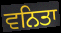
ਵਨਿਤਾ